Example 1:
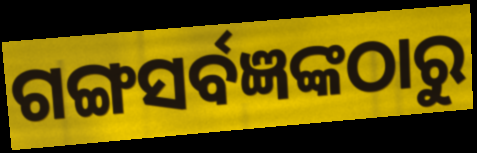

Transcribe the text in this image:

ଗଙ୍ଗସର୍ବଜ୍ଞଙ୍କଠାରୁ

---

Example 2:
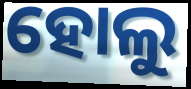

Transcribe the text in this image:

ହୋଲୁ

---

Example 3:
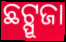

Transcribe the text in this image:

ଛଟ୍ପୂଜା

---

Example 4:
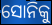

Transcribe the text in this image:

ସୋନିକୁ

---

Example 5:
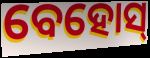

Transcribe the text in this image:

ବେହୋସ୍